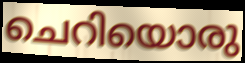
ചെറിയൊരു